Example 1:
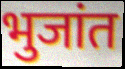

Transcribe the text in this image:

भुजांत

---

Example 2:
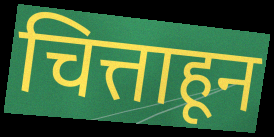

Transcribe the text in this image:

चित्ताहून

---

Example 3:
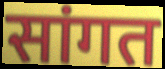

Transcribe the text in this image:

सांगत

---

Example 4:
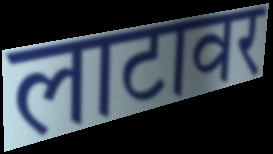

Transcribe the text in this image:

लाटावर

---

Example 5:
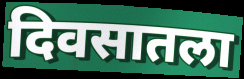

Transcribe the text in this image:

दिवसातला